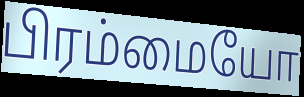
பிரம்மையோ